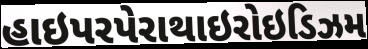
હાઇપરપેરાથાઇરોઇડિઝમ